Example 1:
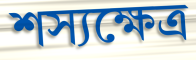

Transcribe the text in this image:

শস্যক্ষেত্র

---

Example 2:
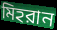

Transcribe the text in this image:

মিহরান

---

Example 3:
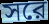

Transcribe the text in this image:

সরে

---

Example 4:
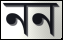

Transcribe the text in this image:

নন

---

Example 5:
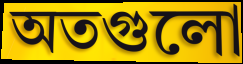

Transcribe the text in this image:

অতগুলো